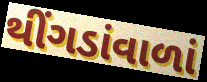
થીંગડાંવાળાં